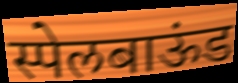
स्पेलबाऊंड